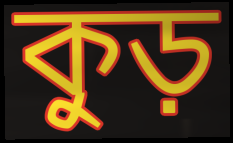
কুড়